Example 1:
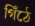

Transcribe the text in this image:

গিঁঠে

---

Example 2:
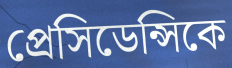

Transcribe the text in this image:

প্রেসিডেন্সিকে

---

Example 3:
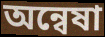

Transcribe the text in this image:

অন্বেষা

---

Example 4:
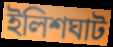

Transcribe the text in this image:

ইলিশঘাট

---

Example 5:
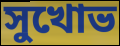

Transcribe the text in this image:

সুখোভ